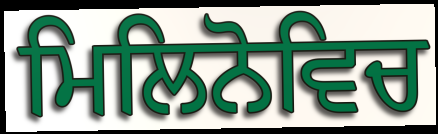
ਮਿਲਿਨੋਵਿਚ